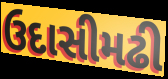
ઉદાસીમઢી